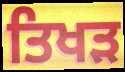
ਤਿਖੜ